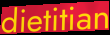
dietitian